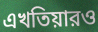
এখতিয়ারও